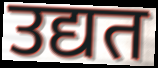
उद्यत